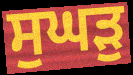
ਸੁਘੜੁ